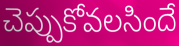
చెప్పుకోవలసిందే